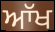
ਆੱਖ